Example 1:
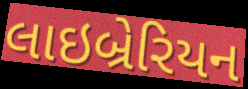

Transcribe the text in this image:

લાઇબ્રેરિયન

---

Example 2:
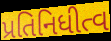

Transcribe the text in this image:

પ્રતિનિધીત્વ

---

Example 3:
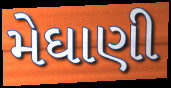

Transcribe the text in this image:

મેઘાણી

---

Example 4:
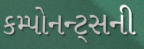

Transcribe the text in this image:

કમ્પોનન્ટ્સની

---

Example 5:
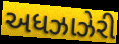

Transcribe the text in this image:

અધઝાઝેરી